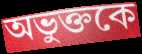
অভুক্তকে